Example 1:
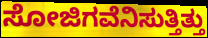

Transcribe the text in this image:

ಸೋಜಿಗವೆನಿಸುತ್ತಿತ್ತು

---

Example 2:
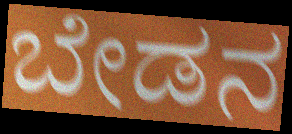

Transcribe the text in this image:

ಬೇಡನ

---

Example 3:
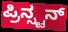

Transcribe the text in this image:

ಪ್ರಿನ್ಸ್ಟನ್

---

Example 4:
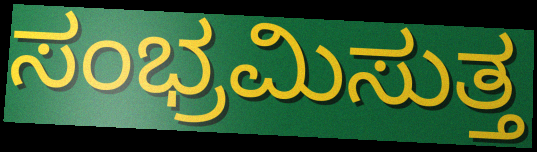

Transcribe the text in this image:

ಸಂಭ್ರಮಿಸುತ್ತ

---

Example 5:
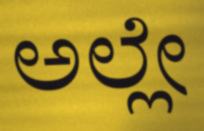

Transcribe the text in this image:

ಅಲ್ಲೇ